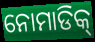
ନୋମାଡିକ୍